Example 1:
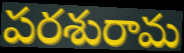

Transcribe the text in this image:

పరశురామ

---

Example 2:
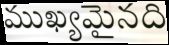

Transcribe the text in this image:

ముఖ్యమైనది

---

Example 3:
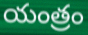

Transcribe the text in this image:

యంత్రం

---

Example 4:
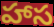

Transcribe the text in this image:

హాస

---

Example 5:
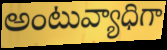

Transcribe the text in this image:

అంటువ్యాధిగా